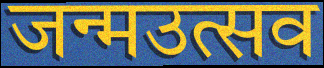
जन्मउत्सव